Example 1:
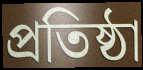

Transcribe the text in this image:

প্ৰতিষ্ঠা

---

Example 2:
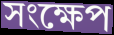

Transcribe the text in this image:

সংক্ষেপ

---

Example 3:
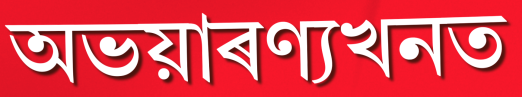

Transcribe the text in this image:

অভয়াৰণ্যখনত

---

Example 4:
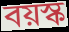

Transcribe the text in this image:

বয়স্ক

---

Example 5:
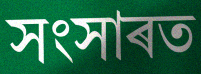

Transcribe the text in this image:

সংসাৰত